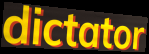
dictator